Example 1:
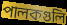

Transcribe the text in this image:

পালকগুলি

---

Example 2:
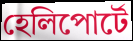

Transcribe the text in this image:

হেলিপোর্টে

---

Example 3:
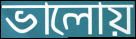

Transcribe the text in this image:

ভালোয়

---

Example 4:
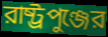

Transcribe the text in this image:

রাষ্ট্রপুঞ্জের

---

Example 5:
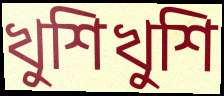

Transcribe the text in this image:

খুশিখুশি